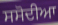
ਸਸੋਦੀਆ